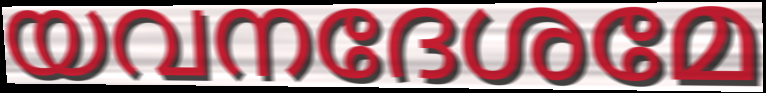
യവനദേശമേ